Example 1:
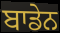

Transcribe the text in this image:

ਬਾਡੇਨ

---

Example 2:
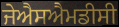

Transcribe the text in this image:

ਜੇਐਸਐਮਡੀਸੀ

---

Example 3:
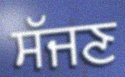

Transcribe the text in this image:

ਸੱਜਣ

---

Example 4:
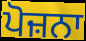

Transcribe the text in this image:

ਪੋਜ਼ਨਾ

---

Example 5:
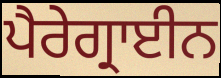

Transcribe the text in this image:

ਪੈਰੇਗ੍ਰਾਈਨ